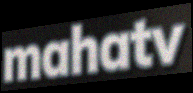
mahatv